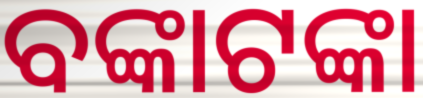
ବଙ୍କାଟଙ୍କା